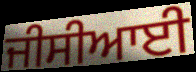
ਜੀਸੀਆਈ